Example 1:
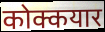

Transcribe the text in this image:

कोक्कयार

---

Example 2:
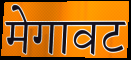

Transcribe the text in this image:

मेगावट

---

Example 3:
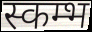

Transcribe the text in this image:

स्कम्भ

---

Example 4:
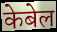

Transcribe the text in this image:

केबेल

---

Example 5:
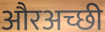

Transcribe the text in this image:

औरअच्छी